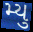
મ્યુ